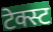
टेक्स्ट